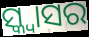
ସ୍କ୍ବାସର